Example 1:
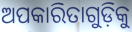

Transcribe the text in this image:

ଅପକାରିତାଗୁଡ଼ିକୁ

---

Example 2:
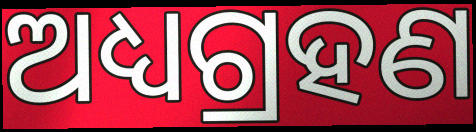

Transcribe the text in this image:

ଅଧ୍ୟଗ୍ରହଣ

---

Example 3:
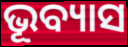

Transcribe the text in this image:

ଭୂବ୍ୟାସ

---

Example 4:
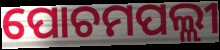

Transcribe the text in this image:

ପୋଚମପଲ୍ଲୀ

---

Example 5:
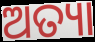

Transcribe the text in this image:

ଅତ୍ୟା